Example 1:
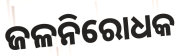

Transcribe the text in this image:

ଜଳନିରୋଧକ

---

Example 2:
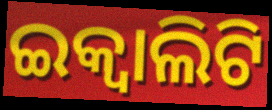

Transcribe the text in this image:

ଇକ୍ୱାଲିଟି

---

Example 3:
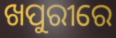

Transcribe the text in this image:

ଖପୁରୀରେ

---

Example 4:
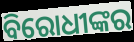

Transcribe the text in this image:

ବିରୋଧୀଙ୍କର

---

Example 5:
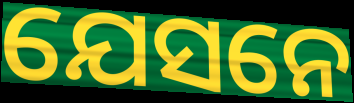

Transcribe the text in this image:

ଯେସନେ